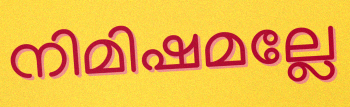
നിമിഷമല്ലേ